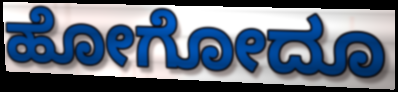
ಹೋಗೋದೂ